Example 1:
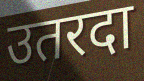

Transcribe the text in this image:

उतरदा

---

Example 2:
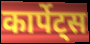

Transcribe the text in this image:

कार्पेट्स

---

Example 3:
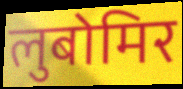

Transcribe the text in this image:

लुबोमिर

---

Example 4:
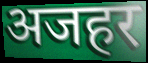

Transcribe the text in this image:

अजहर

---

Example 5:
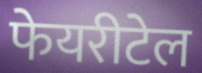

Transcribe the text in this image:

फेयरीटेल